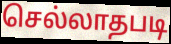
செல்லாதபடி